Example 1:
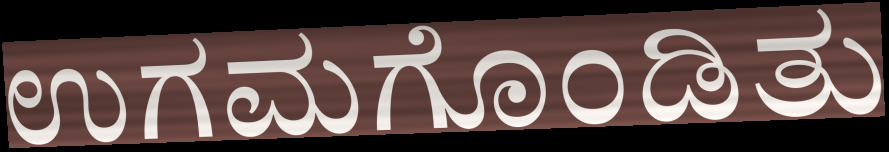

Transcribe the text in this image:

ಉಗಮಗೊಂಡಿತು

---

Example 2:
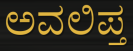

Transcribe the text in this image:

ಅವಲಿಪ್ತ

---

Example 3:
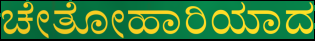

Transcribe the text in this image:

ಚೇತೋಹಾರಿಯಾದ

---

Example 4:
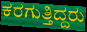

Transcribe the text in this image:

ಕರಗುತ್ತಿದ್ದರು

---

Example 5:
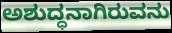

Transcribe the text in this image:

ಅಶುದ್ಧನಾಗಿರುವನು